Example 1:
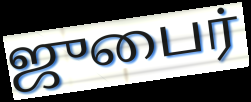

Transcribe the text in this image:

ஜுபைர்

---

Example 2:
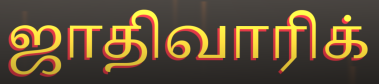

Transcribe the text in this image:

ஜாதிவாரிக்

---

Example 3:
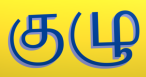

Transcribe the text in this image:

குழு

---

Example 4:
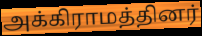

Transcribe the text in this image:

அக்கிராமத்தினர்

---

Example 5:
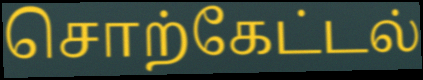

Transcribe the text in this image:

சொற்கேட்டல்